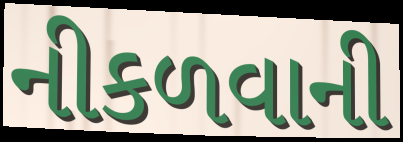
નીકળવાની